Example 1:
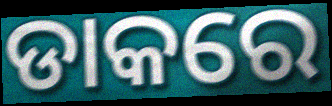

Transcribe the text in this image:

ଡାକରେ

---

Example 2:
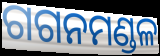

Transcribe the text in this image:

ଗଗନମଣ୍ଡଳ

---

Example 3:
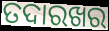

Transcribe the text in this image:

ତଦାରଖର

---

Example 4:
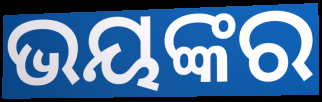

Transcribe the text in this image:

ଭୟଙ୍କର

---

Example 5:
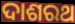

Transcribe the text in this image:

ଦାଶରଥ